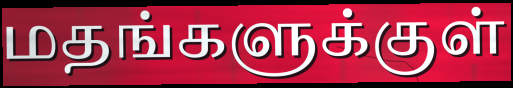
மதங்களுக்குள்